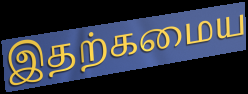
இதற்கமைய